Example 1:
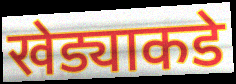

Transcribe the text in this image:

खेड्याकडे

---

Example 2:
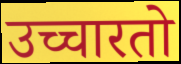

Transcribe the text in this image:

उच्चारतो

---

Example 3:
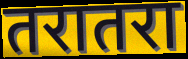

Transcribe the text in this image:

तरातरा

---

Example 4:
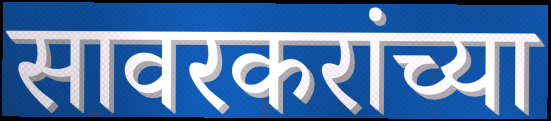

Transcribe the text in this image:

सावरकरांच्या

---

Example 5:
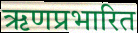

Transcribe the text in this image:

ॠणप्रभारित